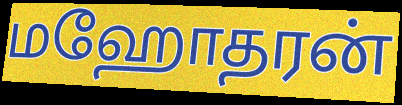
மஹோதரன்